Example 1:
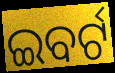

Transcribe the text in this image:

ଇବର୍ଟ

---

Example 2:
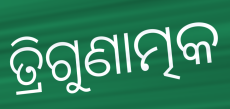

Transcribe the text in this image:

ତ୍ରିଗୁଣାତ୍ମକ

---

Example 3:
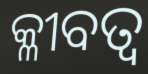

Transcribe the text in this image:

କ୍ଳୀବତ୍ବ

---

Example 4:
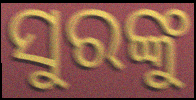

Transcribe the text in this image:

ସୁରଙ୍କୁ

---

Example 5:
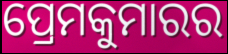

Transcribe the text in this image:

ପ୍ରେମକୁମାରର